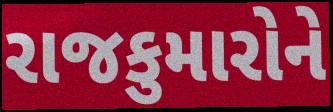
રાજકુમારોને